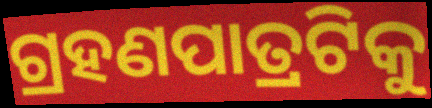
ଗ୍ରହଣପାତ୍ରଟିକୁ